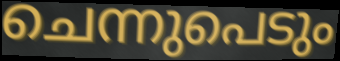
ചെന്നുപെടും